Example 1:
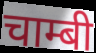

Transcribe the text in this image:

चाम्बी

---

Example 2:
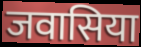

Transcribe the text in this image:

जवासिया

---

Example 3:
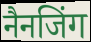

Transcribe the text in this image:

नैनजिंग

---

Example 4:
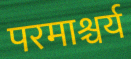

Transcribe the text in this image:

परमाश्चर्य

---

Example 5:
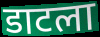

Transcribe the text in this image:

डाटला